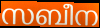
സബീന